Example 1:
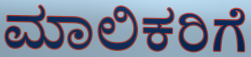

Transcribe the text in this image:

ಮಾಲಿಕರಿಗೆ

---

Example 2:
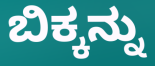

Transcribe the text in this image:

ಬಿಕ್ಕನ್ನು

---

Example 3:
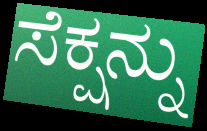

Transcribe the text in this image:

ಸೆಕ್ಷನ್ನು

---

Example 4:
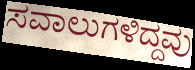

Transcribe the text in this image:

ಸವಾಲುಗಳಿದ್ದವು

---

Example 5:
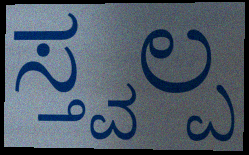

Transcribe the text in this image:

ಸ್ತ್ವಲ್ಪ